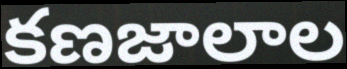
కణజాలాల